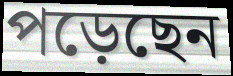
পড়েছেন